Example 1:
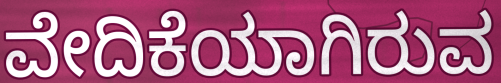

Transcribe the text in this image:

ವೇದಿಕೆಯಾಗಿರುವ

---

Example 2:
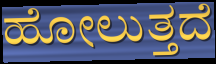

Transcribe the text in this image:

ಹೋಲುತ್ತದೆ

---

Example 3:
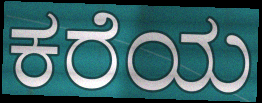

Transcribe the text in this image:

ಕರೆಯ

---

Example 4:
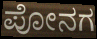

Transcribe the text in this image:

ಪೋನಗ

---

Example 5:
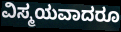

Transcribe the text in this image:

ವಿಸ್ಮಯವಾದರೂ